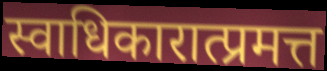
स्वाधिकारात्प्रमत्त